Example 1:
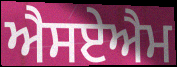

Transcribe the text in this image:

ਐਸਏਐਮ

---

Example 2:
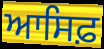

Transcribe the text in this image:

ਆਸਿਫ਼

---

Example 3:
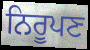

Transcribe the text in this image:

ਨਿਰੂਪਣ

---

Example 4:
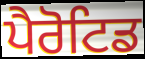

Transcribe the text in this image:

ਪੈਰੋਟਿਡ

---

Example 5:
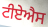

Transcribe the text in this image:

ਟੀਏਐਸ